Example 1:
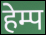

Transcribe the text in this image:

हेम्प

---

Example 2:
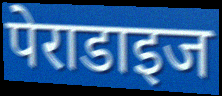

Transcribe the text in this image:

पेराडाइज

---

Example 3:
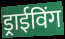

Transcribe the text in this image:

ड्राईविंग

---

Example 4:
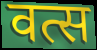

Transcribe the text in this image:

वत्स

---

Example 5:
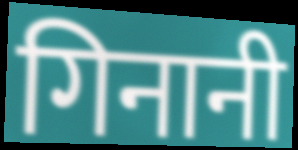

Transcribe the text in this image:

गिनानी